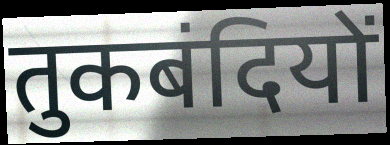
तुकबंदियों